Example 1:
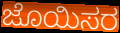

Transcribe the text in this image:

ಜೊಯಿಸರ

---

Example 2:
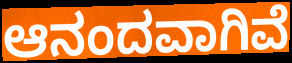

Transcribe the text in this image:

ಆನಂದವಾಗಿವೆ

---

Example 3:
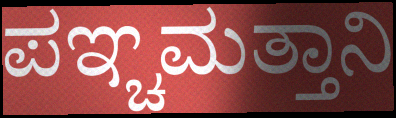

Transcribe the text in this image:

ಪಞ್ಚಮತ್ತಾನಿ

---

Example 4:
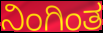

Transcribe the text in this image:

ನಿಂಗಿಂತ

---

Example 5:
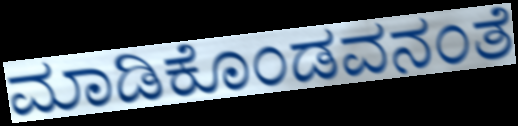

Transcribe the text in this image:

ಮಾಡಿಕೊಂಡವನಂತೆ